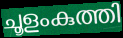
ചൂളംകുത്തി